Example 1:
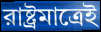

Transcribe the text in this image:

রাষ্ট্রমাত্রেই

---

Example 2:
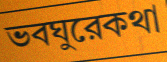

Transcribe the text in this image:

ভবঘুরেকথা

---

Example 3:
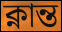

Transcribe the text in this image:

ক্নান্ত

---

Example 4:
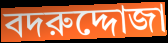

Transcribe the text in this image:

বদরুদ্দোজা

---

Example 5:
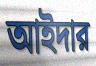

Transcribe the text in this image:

আইদার